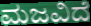
ಮಜವಿದೆ